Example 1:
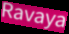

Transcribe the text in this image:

Ravaya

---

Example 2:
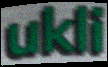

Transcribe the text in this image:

ukli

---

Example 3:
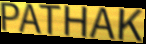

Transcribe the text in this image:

PATHAK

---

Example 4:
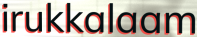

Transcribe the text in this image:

irukkalaam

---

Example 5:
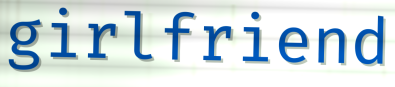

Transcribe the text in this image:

girlfriend